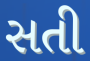
સતી